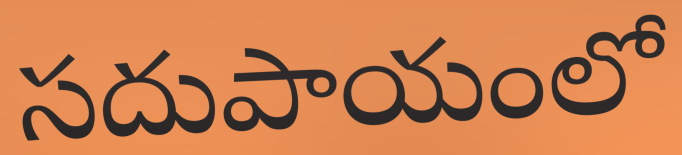
సదుపాయంలో